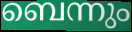
ബെന്നും